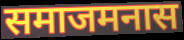
समाजमनास